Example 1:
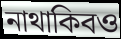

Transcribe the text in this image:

নাথাকিবও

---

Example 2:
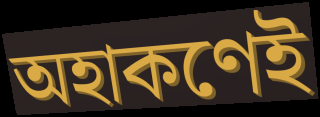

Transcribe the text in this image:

অহাকণেই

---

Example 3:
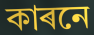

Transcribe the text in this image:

কাৰনে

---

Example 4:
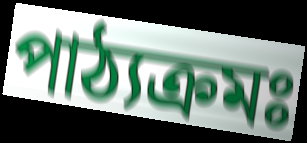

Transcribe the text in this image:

পাঠ্যক্ৰমঃ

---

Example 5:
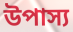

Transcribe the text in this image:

উপাস্য